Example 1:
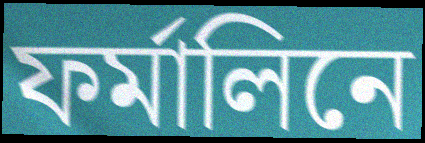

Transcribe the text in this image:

ফর্মালিনে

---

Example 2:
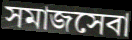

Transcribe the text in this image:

সমাজসেবা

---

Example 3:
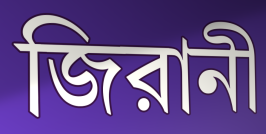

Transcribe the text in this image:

জিরানী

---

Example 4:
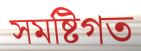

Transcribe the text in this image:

সমষ্টিগত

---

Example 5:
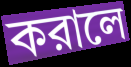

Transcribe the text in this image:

করালে